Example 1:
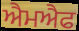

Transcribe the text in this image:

ਐਮਐਫ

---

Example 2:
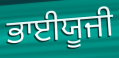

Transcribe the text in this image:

ਭਾਈਯੂਜੀ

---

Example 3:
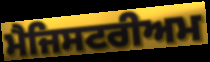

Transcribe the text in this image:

ਮੈਜਿਸਟਰੀਅਮ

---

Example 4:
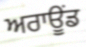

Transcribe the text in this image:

ਅਰਾਊਂਡ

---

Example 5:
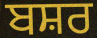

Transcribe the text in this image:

ਬਸ਼ਰ